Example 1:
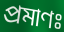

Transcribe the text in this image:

প্রমাণঃ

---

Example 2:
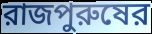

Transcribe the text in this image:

রাজপুরুষের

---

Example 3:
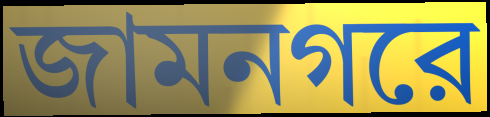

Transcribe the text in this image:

জামনগরে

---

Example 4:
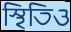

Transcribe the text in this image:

স্থিতিও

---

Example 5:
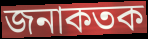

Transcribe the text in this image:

জনাকতক